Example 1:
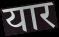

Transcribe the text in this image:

यार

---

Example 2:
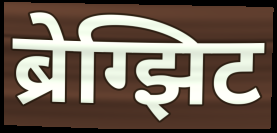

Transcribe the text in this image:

ब्रेग्झिट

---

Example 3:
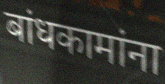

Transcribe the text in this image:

बांधकामांना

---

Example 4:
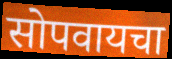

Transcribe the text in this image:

सोपवायचा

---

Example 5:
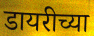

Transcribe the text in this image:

डायरीच्या